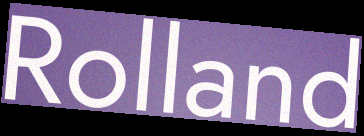
Rolland